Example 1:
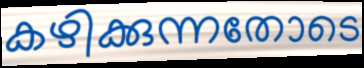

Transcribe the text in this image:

കഴിക്കുന്നതോടെ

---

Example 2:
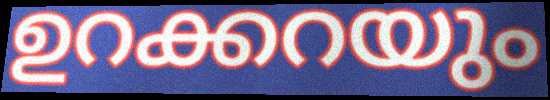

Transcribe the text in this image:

ഉറക്കറയും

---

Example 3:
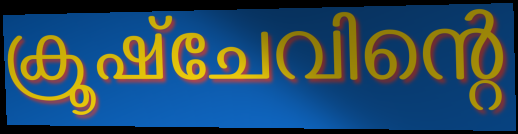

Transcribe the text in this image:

ക്രൂഷ്ചേവിന്റെ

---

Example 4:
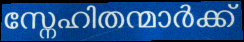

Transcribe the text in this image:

സ്നേഹിതന്മാർക്ക്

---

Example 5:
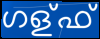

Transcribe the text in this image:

ഗള്ഫ്